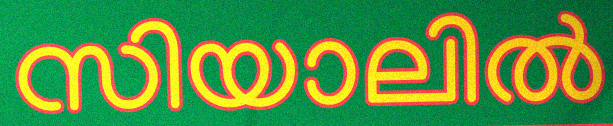
സിയാലിൽ